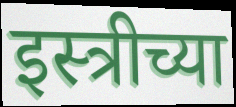
इस्त्रीच्या